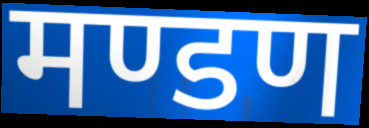
मण्डण